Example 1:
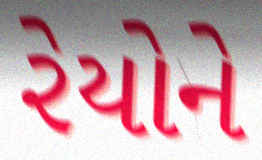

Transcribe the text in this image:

રેયોને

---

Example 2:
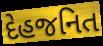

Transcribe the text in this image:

દેહજનિત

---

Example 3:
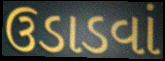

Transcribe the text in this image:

ઉડાડવાં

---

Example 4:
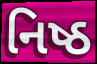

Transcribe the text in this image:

નિષ્ઠ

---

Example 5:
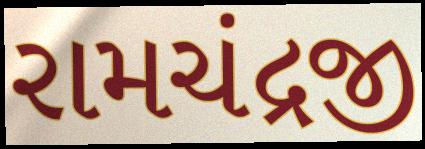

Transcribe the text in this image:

રામચંદ્રજી